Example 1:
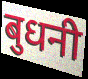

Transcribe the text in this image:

बुधनी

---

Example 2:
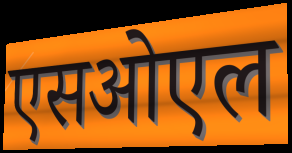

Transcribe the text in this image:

एसओएल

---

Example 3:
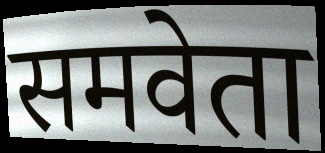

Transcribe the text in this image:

समवेता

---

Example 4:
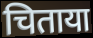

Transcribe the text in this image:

चिताया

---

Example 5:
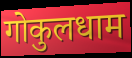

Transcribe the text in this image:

गोकुलधाम